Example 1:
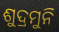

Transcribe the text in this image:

ଶୁଦ୍ରମୁନି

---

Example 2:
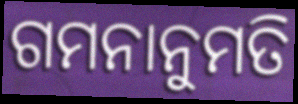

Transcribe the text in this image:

ଗମନାନୁମତି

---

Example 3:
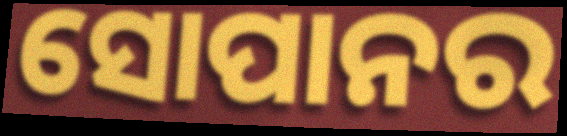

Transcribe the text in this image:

ସୋପାନର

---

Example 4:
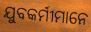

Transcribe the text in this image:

ଯୁବକର୍ମୀମାନେ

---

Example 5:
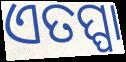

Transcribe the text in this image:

ଏତପ୍ପା